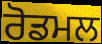
ਰੋਡਮਲ